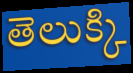
తెలుక్కి